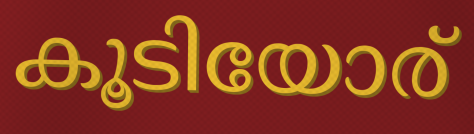
കൂടിയോര്